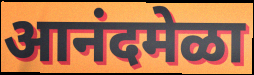
आनंदमेळा